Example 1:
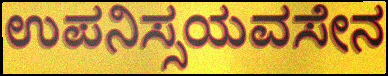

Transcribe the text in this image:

ಉಪನಿಸ್ಸಯವಸೇನ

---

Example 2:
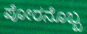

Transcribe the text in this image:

ಪೋರನೊಬ್ಬ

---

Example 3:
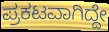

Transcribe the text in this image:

ಪ್ರಕಟವಾಗಿದ್ದೇ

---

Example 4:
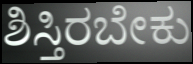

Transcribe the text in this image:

ಶಿಸ್ತಿರಬೇಕು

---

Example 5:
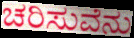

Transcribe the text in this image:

ಚರಿಸುವೆನು